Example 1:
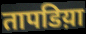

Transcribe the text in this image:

तापडिय़ा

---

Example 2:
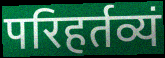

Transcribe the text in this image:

परिहर्तव्यं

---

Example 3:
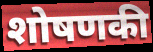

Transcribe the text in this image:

शोषणकी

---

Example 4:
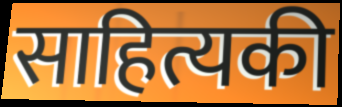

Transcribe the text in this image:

साहित्यकी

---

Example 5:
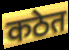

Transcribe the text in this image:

कठेत